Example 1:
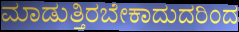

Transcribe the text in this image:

ಮಾಡುತ್ತಿರಬೇಕಾದುದರಿಂದ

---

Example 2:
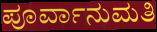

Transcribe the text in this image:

ಪೂರ್ವಾನುಮತಿ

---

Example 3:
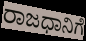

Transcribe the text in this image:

ರಾಜಧಾನಿಗೆ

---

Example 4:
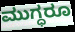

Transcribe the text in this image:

ಮುಗ್ಧರೂ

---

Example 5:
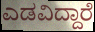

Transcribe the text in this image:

ಎಡವಿದ್ದಾರೆ